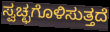
ಸ್ವಚ್ಛಗೊಳಿಸುತ್ತದೆ